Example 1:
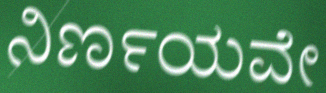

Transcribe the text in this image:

ನಿರ್ಣಯವೇ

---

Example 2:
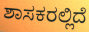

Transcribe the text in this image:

ಶಾಸಕರಲ್ಲಿದೆ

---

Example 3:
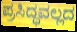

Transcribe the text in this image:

ಪ್ರಸಿದ್ಧವಲ್ಲದ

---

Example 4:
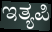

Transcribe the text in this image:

ಇತ್ಯಪಿ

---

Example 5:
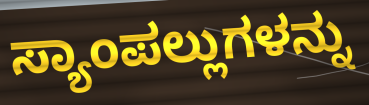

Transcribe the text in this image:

ಸ್ಯಾಂಪಲ್ಲುಗಳನ್ನು